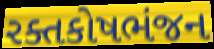
રક્તકોષભંજન